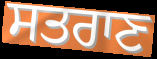
ਸਤਰਾਣ